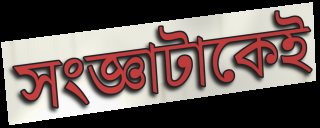
সংজ্ঞাটাকেই